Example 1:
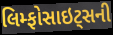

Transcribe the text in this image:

લિમ્ફોસાઇટ્સની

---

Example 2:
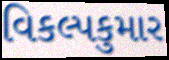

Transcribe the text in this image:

વિકલ્પકુમાર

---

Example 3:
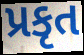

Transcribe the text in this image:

પ્રકૃત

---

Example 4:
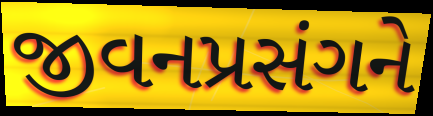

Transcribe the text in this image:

જીવનપ્રસંગને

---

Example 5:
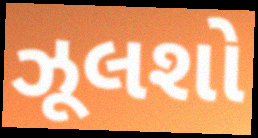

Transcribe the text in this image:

ઝૂલશો